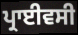
ਪ੍ਰਾਈਵਸੀ